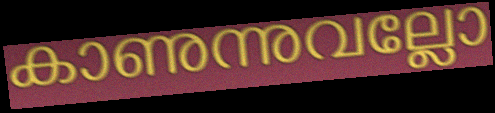
കാണുന്നുവല്ലോ